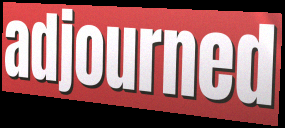
adjourned